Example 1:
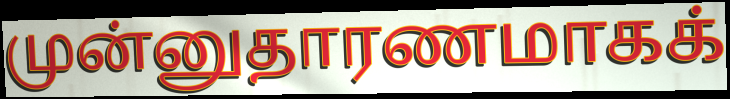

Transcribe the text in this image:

முன்னுதாரணமாகக்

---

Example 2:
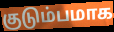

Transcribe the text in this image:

குடும்பமாக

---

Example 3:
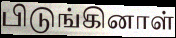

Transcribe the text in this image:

பிடுங்கினாள்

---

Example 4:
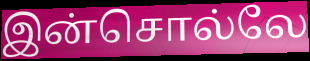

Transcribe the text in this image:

இன்சொல்லே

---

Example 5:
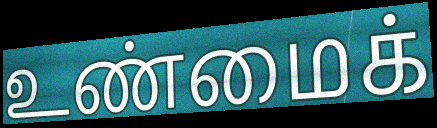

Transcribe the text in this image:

உண்மைக்